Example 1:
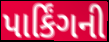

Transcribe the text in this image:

પાર્કિંગની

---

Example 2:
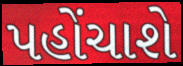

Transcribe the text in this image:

પહોંચાશે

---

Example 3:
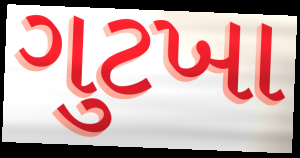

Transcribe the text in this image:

ગુટખા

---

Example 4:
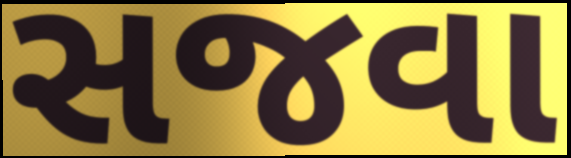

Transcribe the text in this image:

સજવા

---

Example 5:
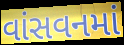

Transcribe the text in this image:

વાંસવનમાં